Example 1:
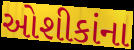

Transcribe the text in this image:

ઓશીકાંના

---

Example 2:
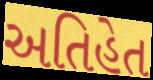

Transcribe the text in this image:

અતિહેત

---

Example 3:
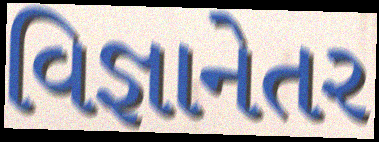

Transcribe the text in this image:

વિજ્ઞાનેતર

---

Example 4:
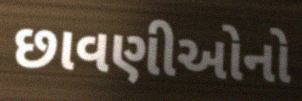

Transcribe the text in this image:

છાવણીઓનો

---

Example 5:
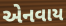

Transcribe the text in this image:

એનવાય